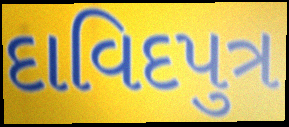
દાવિદપુત્ર